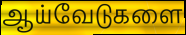
ஆய்வேடுகளை